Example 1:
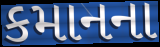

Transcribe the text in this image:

કમાનના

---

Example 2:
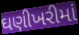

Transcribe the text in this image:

ઘણીખરીમાં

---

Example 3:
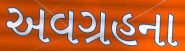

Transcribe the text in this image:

અવગ્રહના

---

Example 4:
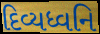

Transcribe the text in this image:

દિવ્યધ્વનિ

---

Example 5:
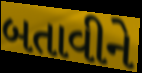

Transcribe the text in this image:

બતાવીને